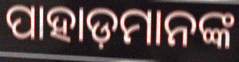
ପାହାଡ଼ମାନଙ୍କ